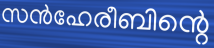
സൻഹേരീബിന്റെ